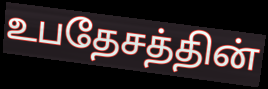
உபதேசத்தின்